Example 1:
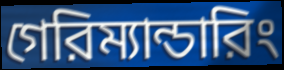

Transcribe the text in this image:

গেরিম্যান্ডারিং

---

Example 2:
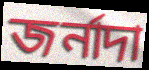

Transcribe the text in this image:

জর্নাদা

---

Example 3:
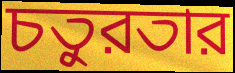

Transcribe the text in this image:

চতুরতার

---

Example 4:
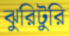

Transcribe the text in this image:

ঝুরিটুরি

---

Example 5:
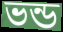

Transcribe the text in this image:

ভন্ড